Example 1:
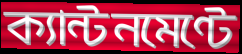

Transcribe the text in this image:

ক্যান্টনমেণ্টে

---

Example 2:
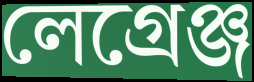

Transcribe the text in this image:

লেগ্রেঞ্জ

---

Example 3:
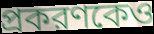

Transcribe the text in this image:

প্রকরণকেও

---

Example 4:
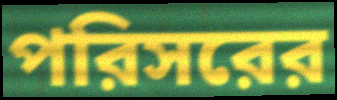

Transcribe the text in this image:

পরিসরের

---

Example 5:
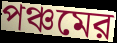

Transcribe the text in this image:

পঞ্চমের